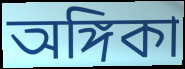
অঙ্গিকা